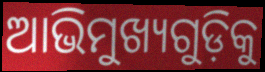
ଆଭିମୁଖ୍ୟଗୁଡ଼ିକୁ